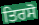
ਤਿਰਸੋ